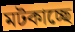
মটকাচ্ছে